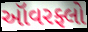
ઑવરફ્લો